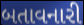
બતાવનારી